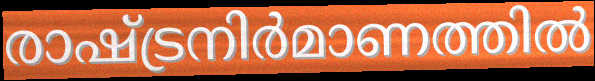
രാഷ്ട്രനിർമാണത്തിൽ